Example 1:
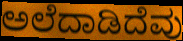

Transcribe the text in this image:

ಅಲೆದಾಡಿದೆವು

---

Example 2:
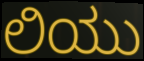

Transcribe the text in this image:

ಲಿಯು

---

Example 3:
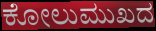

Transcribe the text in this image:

ಕೋಲುಮುಖದ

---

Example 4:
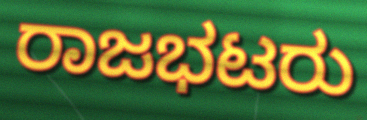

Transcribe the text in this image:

ರಾಜಭಟರು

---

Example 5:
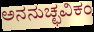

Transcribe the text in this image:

ಅನನುಚ್ಛವಿಕಂ